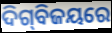
ଦିଗ୍‌ବିଜୟରେ